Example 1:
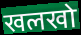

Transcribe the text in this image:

खलखो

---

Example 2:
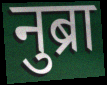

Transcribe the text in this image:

नुब्रा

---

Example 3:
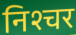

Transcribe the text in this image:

निश्चर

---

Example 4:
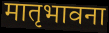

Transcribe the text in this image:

मातृभावना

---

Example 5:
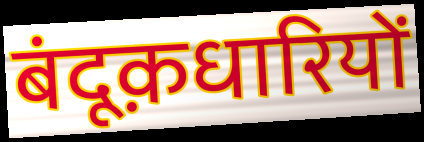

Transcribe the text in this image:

बंदूक़धारियों